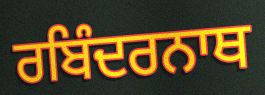
ਰਬਿੰਦਰਨਾਥ